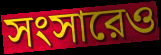
সংসারেও